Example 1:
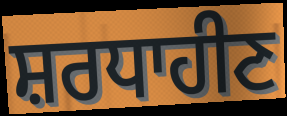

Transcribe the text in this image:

ਸ਼ਰਧਾਹੀਣ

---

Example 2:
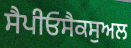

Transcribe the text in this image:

ਸੈਪੀਓਸੈਕਸੁਅਲ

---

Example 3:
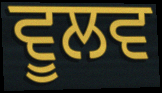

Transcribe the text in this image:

ਵੂਲਵ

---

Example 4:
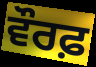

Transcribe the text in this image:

ਵੌਰਫ਼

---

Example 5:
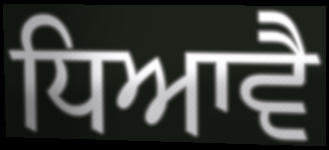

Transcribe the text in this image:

ਧਿਆਵੈ